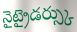
నైట్రైడర్స్కు